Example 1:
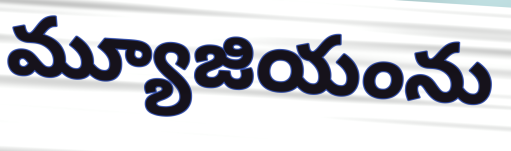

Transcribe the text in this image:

మ్యూజియంను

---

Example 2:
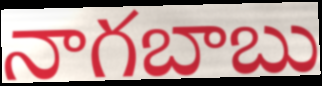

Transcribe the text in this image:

నాగబాబు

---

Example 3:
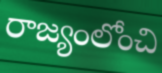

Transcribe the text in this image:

రాజ్యంలోంచి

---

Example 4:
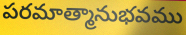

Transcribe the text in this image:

పరమాత్మానుభవము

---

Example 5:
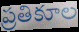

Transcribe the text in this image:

ప్రతికూల